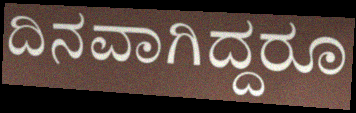
ದಿನವಾಗಿದ್ದರೂ